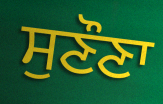
ਸੁਣੌਣਾ